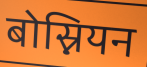
बोस्नियन